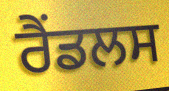
ਰੈਂਡਲਸ